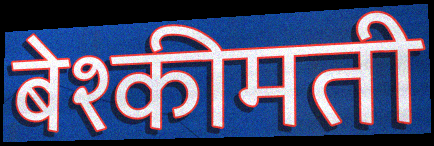
बेश्कीमती